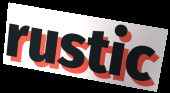
rustic